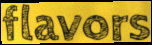
flavors